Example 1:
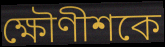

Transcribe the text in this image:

ক্ষৌণীশকে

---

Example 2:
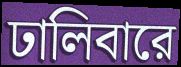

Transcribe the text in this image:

ঢালিবারে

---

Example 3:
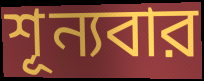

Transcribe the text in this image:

শূন্যবার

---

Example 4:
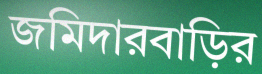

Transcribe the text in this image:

জমিদারবাড়ির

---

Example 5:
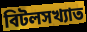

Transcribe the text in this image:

বিটলসখ্যাত